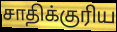
சாதிக்குரிய